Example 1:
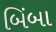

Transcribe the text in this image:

બિંબા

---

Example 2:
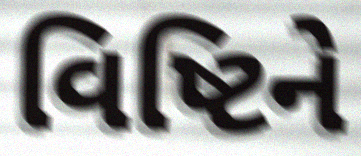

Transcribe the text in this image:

વિષ્ટિને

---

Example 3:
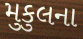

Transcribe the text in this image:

મુકુલના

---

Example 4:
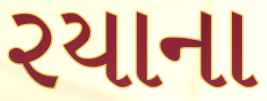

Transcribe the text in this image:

રયાના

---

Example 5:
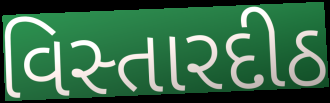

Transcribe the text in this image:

વિસ્તારદીઠ